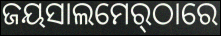
ଜୟସାଲମେର୍‌ଠାରେ